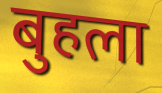
बुहला